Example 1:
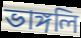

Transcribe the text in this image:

ভাঙ্গলি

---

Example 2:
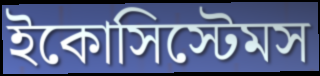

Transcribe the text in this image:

ইকোসিস্টেমস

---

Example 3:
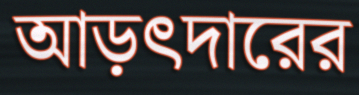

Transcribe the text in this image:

আড়ৎদারের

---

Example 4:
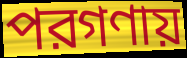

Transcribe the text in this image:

পরগণায়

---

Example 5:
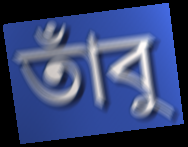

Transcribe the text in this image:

তাঁবু